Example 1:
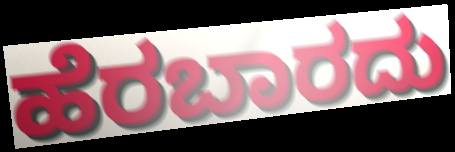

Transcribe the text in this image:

ಹೆರಬಾರದು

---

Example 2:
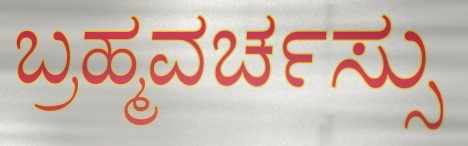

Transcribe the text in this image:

ಬ್ರಹ್ಮವರ್ಚಸ್ಸು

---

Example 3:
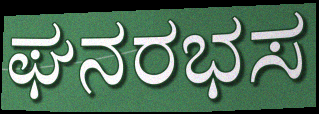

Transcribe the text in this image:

ಘನರಭಸ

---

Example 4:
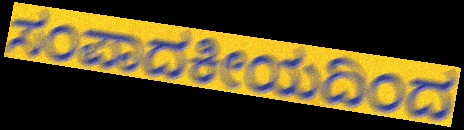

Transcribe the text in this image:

ಸಂಪಾದಕೀಯದಿಂದ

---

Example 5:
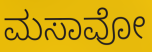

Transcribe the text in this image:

ಮಸಾವೋ